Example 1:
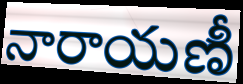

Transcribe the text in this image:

నారాయణీ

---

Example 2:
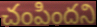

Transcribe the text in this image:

చంపిందని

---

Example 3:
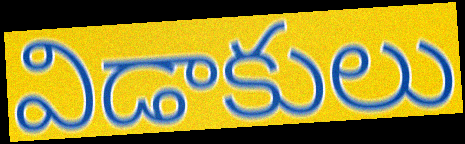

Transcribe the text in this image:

విడాకులు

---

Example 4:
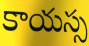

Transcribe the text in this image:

కాయస్స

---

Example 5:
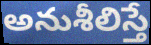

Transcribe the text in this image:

అనుశీలిస్తే